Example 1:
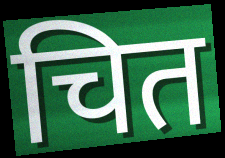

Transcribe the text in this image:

चित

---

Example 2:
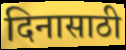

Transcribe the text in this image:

दिनासाठी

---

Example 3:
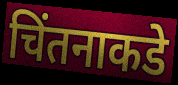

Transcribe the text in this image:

चिंतनाकडे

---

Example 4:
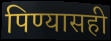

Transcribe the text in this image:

पिण्यासही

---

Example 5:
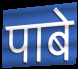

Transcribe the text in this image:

पाबे